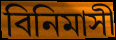
বিনিমাসী